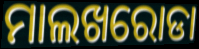
ମାଲଖରୋଡା